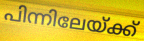
പിന്നിലേയ്ക്ക്